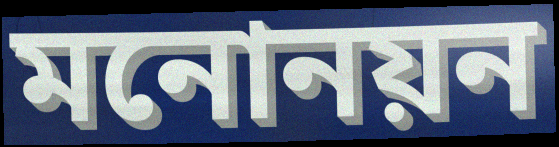
মনোনয়ন